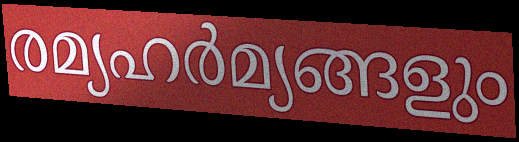
രമ്യഹർമ്യങ്ങളും